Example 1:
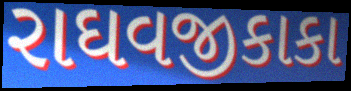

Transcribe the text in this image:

રાઘવજીકાકા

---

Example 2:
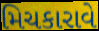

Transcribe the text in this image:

મિચકારાવે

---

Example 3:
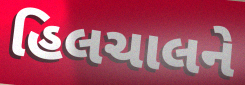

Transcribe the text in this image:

હિલચાલને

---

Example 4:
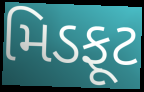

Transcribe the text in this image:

મિડફૂટ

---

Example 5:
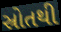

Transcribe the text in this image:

સ્રોતથી